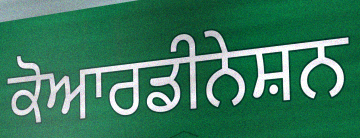
ਕੋਆਰਡੀਨੇਸ਼ਨ